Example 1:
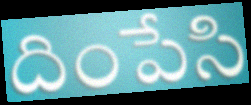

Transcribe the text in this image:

దింపేసి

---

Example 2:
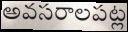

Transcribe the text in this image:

అవసరాలపట్ల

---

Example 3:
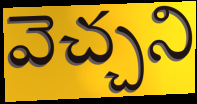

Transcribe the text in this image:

వెచ్చని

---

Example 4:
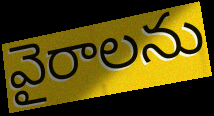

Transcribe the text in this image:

వైరాలను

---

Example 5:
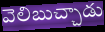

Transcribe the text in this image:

వెలిబుచ్చాడు